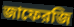
জাফেরজি